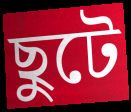
ছুটে